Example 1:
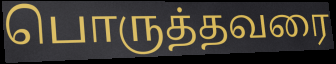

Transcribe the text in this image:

பொருத்தவரை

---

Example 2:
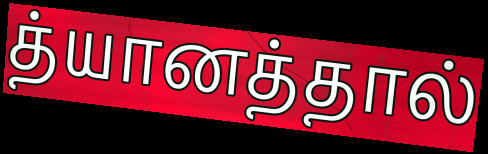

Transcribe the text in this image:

த்யானத்தால்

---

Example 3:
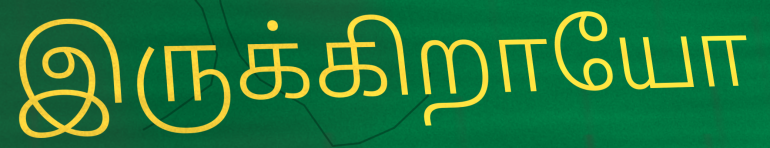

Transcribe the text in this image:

இருக்கிறாயோ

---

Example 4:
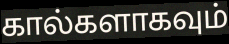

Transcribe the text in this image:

கால்களாகவும்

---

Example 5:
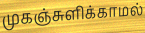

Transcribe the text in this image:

முகஞ்சுளிக்காமல்